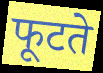
फूटते